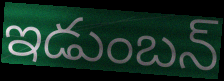
ఇడుంబన్